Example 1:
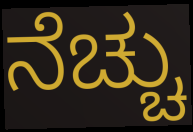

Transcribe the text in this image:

ನೆಚ್ಚು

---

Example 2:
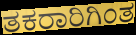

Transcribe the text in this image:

ತಕರಾರಿಗಿಂತ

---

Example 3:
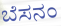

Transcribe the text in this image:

ಬೆಸನಂ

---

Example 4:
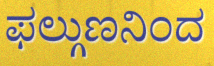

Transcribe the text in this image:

ಫಲ್ಗುಣನಿಂದ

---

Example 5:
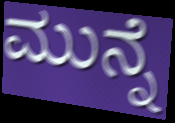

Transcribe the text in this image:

ಮುನ್ನೆ